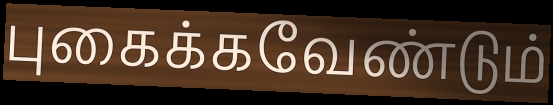
புகைக்கவேண்டும்